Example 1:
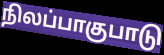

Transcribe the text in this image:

நிலப்பாகுபாடு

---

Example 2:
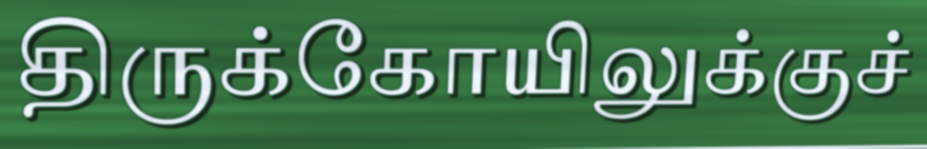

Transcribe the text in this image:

திருக்கோயிலுக்குச்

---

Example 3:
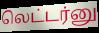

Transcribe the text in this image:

லெட்டர்னு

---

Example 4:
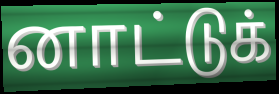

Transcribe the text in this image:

னாட்டுக்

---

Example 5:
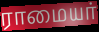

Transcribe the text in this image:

ராமையர்